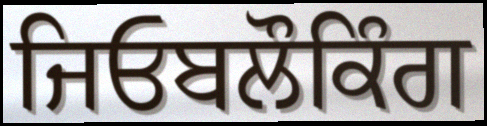
ਜਿਓਬਲੌਕਿੰਗ